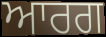
ਆਰਗ